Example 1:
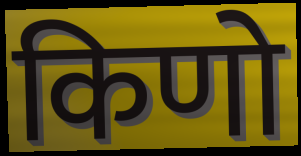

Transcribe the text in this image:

किणो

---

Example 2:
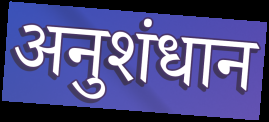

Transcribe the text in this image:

अनुशंधान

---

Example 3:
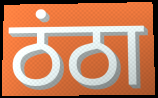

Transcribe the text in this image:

ठंठा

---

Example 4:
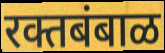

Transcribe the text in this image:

रक्तबंबाळ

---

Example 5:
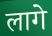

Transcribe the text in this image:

लागे